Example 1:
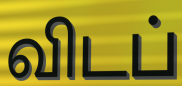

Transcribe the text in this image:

விடப்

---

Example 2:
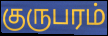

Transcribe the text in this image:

குருபரம்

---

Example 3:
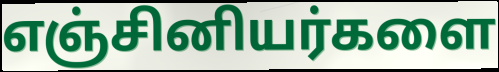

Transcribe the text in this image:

எஞ்சினியர்களை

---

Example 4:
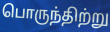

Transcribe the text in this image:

பொருந்திற்று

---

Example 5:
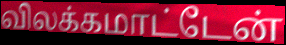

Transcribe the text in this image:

விலக்கமாட்டேன்